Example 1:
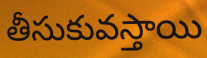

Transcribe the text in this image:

తీసుకువస్తాయి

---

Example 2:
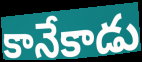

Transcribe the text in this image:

కానేకాడు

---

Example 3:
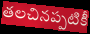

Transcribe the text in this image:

తలచినప్పటికీ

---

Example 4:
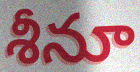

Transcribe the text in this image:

శీనూ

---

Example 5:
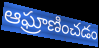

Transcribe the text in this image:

ఆఘ్రాణించడం